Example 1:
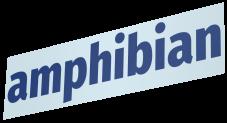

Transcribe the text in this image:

amphibian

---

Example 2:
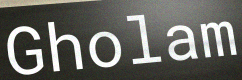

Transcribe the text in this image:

Gholam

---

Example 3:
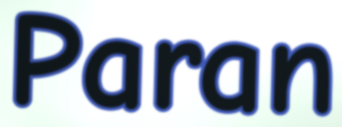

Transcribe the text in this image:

Paran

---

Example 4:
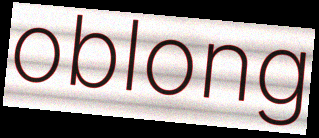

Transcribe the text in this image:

oblong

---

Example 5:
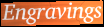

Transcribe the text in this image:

Engravings